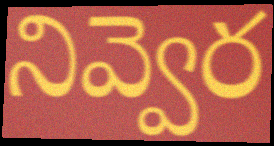
నివ్వెర